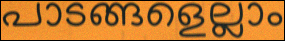
പാടങ്ങളെല്ലാം